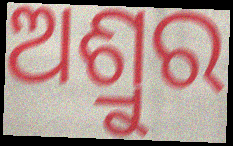
ଅଶ୍ରୁର